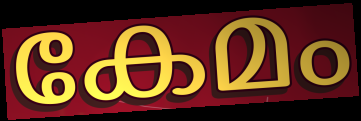
കേമം